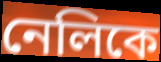
নেলিকে